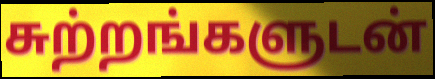
சுற்றங்களுடன்